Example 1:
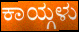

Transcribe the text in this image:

ಕಾಯ್ಗಳು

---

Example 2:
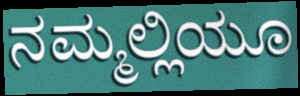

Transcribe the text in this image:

ನಮ್ಮಲ್ಲಿಯೂ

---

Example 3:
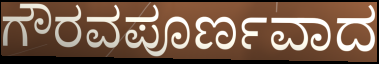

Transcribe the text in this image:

ಗೌರವಪೂರ್ಣವಾದ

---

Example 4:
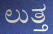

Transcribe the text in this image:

ಲುತ್ತ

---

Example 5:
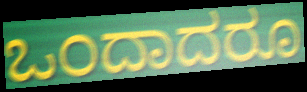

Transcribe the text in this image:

ಒಂದಾದರೂ